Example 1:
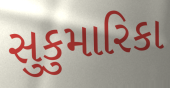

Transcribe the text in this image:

સુકુમારિકા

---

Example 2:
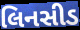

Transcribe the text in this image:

લિનસીડ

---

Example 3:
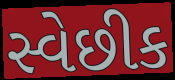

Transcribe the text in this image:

સ્વેછીક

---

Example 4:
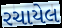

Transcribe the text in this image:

રચાયેલ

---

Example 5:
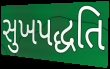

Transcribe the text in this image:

સુખપદ્ધતિ